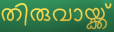
തിരുവായ്ക്ക്